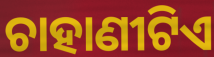
ଚାହାଣୀଟିଏ